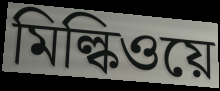
মিল্কিওয়ে